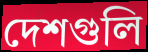
দেশগুলি